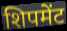
शिपमेंट